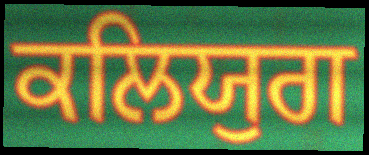
ਕਲਿਯੁਗ